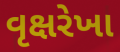
વૃક્ષરેખા